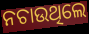
ନଚାଉଥିଲେ